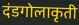
दंडगोलाकृती